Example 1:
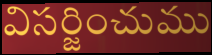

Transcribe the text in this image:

విసర్జించుము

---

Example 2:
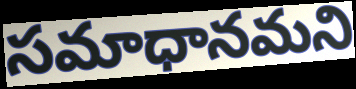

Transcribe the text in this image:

సమాధానమని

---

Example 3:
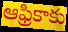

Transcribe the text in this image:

ఆఫ్రికాకు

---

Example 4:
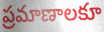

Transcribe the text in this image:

ప్రమాణాలకూ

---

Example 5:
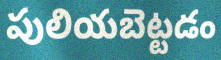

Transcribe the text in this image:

పులియబెట్టడం